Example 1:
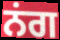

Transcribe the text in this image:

ਨਂਗ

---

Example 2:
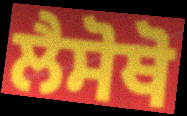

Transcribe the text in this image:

ਲੈਸੋਥੋ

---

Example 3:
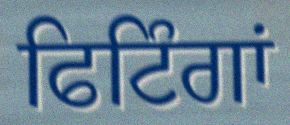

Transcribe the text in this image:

ਫਿਟਿੰਗਾਂ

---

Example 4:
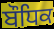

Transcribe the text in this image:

ਬੌਧਿਕ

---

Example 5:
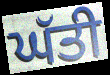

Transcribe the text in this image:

ਘੱਤੀ